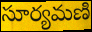
సూర్యమణి